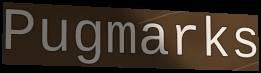
Pugmarks